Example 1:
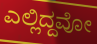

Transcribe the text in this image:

ಎಲ್ಲಿದ್ದವೋ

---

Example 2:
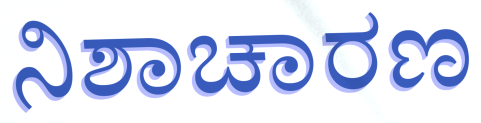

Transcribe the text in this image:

ನಿಶಾಚಾರಣ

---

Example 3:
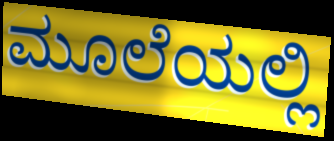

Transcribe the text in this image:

ಮೂಲೆಯಲ್ಲಿ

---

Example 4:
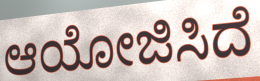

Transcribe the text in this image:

ಆಯೋಜಿಸಿದೆ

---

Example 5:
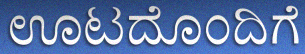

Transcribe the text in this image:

ಊಟದೊಂದಿಗೆ